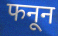
फनून